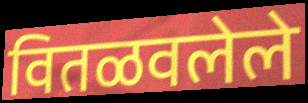
वितळवलेले